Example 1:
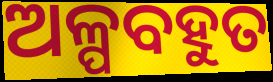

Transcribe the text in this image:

ଅଳ୍ପବହୁତ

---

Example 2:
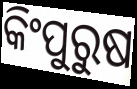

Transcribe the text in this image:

କିଂପୁରୁଷ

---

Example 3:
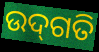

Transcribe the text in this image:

ଉଦ୍‌ଗତି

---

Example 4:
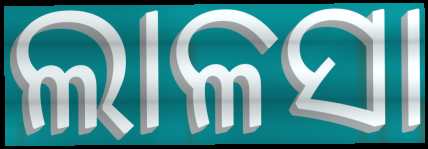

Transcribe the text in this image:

ଲାଳସା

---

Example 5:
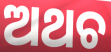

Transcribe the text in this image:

ଅଥଚ